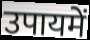
उपायमें